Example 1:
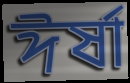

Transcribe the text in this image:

ঈর্ষা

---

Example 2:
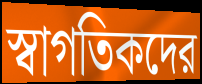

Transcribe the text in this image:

স্বাগতিকদের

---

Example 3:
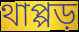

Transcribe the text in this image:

থাপ্পড়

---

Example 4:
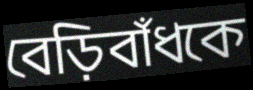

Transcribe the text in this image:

বেড়িবাঁধকে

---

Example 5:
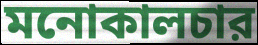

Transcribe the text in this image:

মনোকালচার